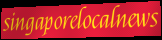
singaporelocalnews